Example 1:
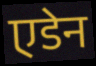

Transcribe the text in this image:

एडेन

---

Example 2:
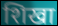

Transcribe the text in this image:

शिखा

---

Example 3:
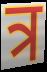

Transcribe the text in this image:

त्र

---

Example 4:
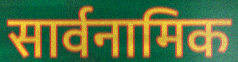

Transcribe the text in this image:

सार्वनामिक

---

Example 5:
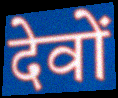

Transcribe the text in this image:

देवों